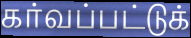
கர்வப்பட்டுக்